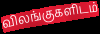
விலங்குகளிடம்